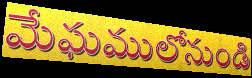
మేఘములోనుండి